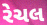
રેચલ